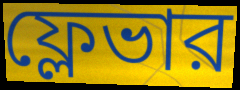
ফ্লেভার